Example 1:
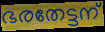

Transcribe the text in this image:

ഭരതേട്ടന്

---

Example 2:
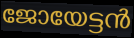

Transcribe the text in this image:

ജോയേട്ടൻ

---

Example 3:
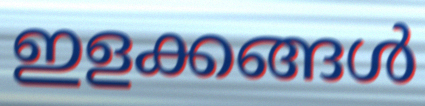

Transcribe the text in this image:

ഇളക്കങ്ങൾ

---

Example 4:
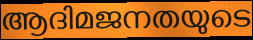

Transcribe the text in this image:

ആദിമജനതയുടെ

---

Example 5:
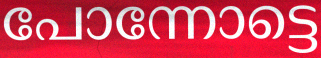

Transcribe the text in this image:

പോന്നോട്ടെ